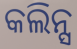
କଲିନ୍ସ